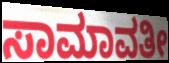
ಸಾಮಾವತೀ